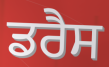
ਡਰੈਸ